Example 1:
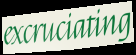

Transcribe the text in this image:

excruciating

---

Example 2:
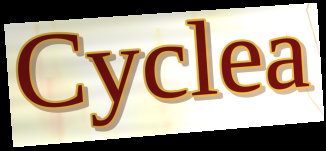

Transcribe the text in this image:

Cyclea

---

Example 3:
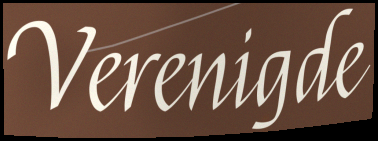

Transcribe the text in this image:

Verenigde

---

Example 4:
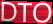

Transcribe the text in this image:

DTO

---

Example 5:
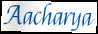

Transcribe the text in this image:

Aacharya